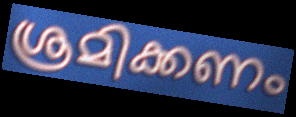
ശ്രമിക്കണം